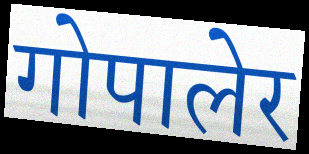
गोपालेर